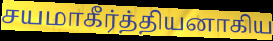
சயமாகீர்த்தியனாகிய